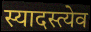
स्यादस्त्येव